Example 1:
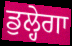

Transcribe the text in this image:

ਡੁਲ੍ਹੇਗਾ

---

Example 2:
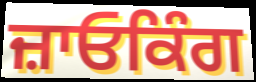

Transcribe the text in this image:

ਜ਼ਾਓਕਿੰਗ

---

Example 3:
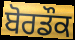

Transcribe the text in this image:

ਬੋਰਡੌਕ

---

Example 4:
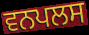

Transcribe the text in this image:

ਵਨਪਲਸ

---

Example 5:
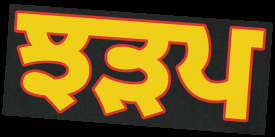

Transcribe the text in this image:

ਝੜਪ